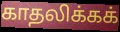
காதலிக்கக்